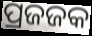
ପ୍ରଜଜକ